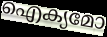
ഐക്യമോ